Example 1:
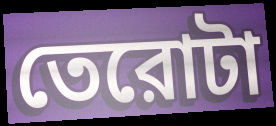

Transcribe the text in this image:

তেরোটা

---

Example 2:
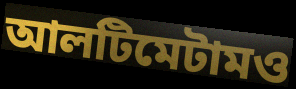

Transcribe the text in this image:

আলটিমেটামও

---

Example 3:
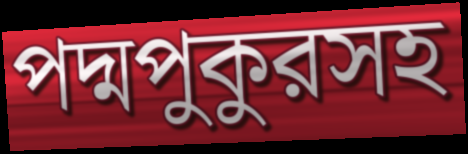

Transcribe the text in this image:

পদ্মপুকুরসহ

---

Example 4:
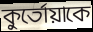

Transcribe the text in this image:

কুর্তোয়াকে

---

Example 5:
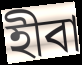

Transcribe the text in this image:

হীবা